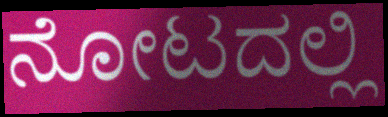
ನೋಟದಲ್ಲಿ